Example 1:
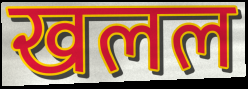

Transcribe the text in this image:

खलल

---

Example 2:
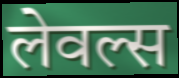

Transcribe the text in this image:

लेवल्स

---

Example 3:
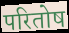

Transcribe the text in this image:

परितोष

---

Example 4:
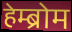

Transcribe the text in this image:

हेम्ब्रोम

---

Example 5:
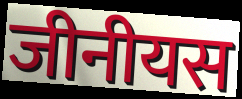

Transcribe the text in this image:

जीनीयस